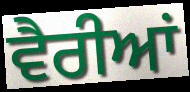
ਵੈਰੀਆਂ